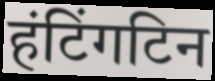
हंटिंगटिन